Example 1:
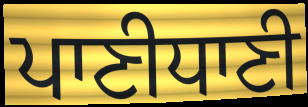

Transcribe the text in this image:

ਪਾਣੀਧਾਣੀ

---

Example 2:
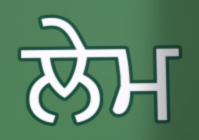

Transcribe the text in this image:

ਲੇਮ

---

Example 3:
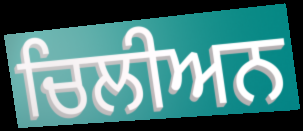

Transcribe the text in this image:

ਚਿਲੀਅਨ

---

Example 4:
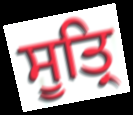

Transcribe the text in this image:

ਸੂਤ੍ਰਿ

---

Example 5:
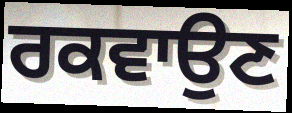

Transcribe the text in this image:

ਰਕਵਾਉਣ